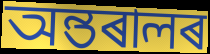
অন্তৰালৰ